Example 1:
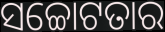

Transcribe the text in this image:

ସଚ୍ଚୋଟତାର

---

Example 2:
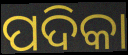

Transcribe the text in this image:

ପଦିକା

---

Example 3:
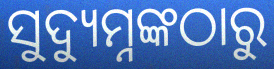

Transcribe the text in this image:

ସୁଦ୍ୟୁମ୍ନଙ୍କଠାରୁ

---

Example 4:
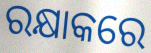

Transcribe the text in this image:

ରକ୍ଷାକରେ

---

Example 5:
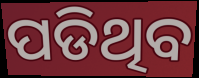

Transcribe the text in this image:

ପଡିଥିବ